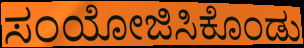
ಸಂಯೋಜಿಸಿಕೊಂಡು